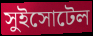
সুইসোটেল